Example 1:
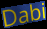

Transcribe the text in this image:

Dabi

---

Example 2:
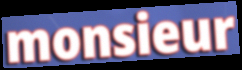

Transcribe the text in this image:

monsieur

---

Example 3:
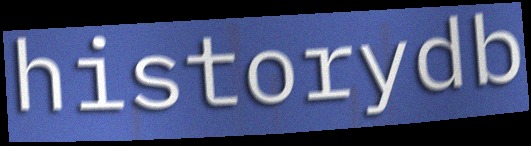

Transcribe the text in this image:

historydb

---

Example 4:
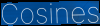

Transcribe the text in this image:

Cosines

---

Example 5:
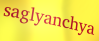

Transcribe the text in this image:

saglyanchya